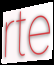
rte